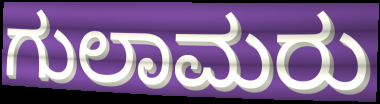
ಗುಲಾಮರು